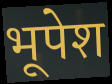
भूपेश